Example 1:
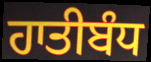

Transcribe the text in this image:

ਹਾਤੀਬੰਧ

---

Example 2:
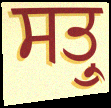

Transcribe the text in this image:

ਸਤ੍ਰੁ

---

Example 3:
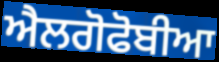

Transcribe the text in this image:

ਐਲਗੋਫੋਬੀਆ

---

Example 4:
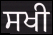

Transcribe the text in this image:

ਸਖੀ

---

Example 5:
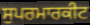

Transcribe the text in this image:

ਸੁਪਰਮਾਰਕੀਟ